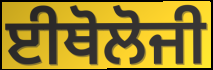
ਈਥੋਲੋਜੀ